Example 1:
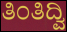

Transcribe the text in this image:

ತಿಂತಿದ್ವಿ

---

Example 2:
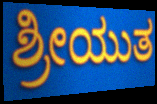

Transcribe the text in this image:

ಶ್ರೀಯುತ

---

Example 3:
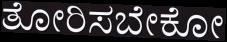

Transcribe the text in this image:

ತೋರಿಸಬೇಕೋ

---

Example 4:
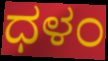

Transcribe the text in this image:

ಧಳಂ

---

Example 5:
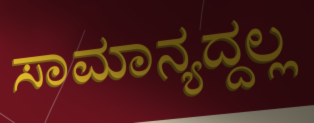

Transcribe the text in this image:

ಸಾಮಾನ್ಯದ್ದಲ್ಲ